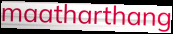
maatharthang